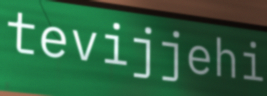
tevijjehi